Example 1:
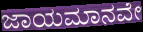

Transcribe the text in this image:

ಜಾಯಮಾನವೇ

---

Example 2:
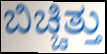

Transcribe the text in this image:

ಬಿಚ್ಚಿತ್ತು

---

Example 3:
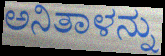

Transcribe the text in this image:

ಅನಿತಾಳನ್ನು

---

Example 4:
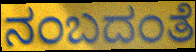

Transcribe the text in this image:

ನಂಬದಂತೆ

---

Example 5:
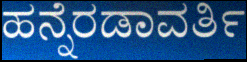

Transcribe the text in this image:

ಹನ್ನೆರಡಾವರ್ತಿ